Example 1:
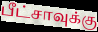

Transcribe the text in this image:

பீட்சாவுக்கு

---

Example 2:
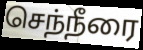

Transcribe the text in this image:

செந்நீரை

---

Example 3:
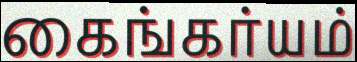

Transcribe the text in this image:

கைங்கர்யம்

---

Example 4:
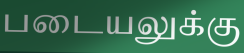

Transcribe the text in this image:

படையலுக்கு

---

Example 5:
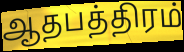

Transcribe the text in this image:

ஆதபத்திரம்